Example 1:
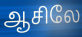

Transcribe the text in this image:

ஆசிலே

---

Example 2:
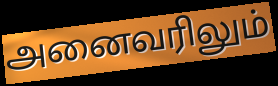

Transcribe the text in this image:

அனைவரிலும்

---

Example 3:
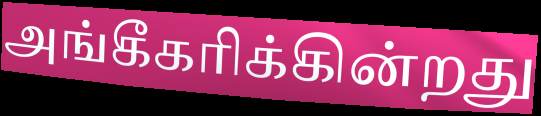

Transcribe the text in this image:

அங்கீகரிக்கின்றது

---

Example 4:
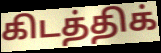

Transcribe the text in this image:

கிடத்திக்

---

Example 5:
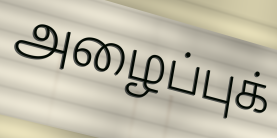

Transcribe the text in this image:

அழைப்புக்